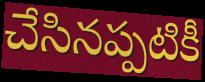
చేసినప్పటికీ